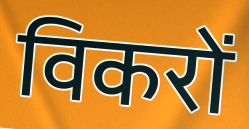
विकरों